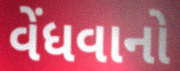
વેંધવાનો